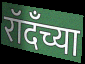
रॉदँच्या